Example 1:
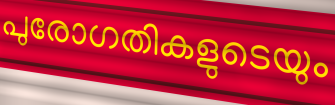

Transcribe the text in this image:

പുരോഗതികളുടെയും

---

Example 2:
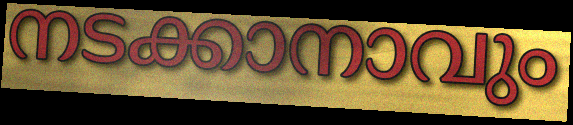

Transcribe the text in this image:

നടക്കാനാവും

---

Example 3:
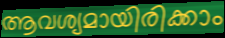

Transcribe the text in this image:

ആവശ്യമായിരിക്കാം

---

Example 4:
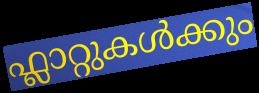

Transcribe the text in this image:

ഫ്ലാറ്റുകൾക്കും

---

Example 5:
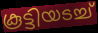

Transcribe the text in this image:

കൂട്ടിയടച്ച്